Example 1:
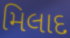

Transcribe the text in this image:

મિલાદ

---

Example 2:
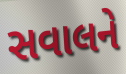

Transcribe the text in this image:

સવાલને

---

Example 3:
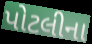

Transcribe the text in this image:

પોટલીના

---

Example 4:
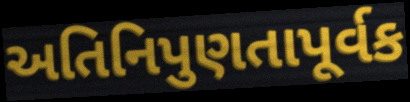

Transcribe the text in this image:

અતિનિપુણતાપૂર્વક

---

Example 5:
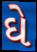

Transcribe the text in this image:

ઘે